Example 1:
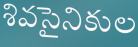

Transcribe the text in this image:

శివసైనికుల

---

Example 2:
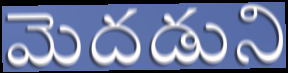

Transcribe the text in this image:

మెదడుని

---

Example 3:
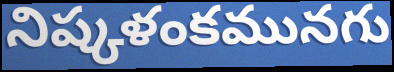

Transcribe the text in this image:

నిష్కళంకమునగు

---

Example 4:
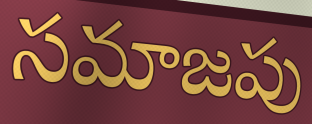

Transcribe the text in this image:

సమాజపు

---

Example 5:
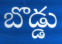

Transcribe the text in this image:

బొడ్డు